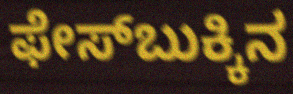
ಫೇಸ್‌ಬುಕ್ಕಿನ